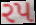
રપ